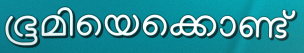
ഭൂമിയെക്കൊണ്ട്